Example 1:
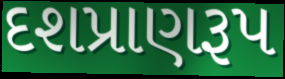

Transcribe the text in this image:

દશપ્રાણરૂપ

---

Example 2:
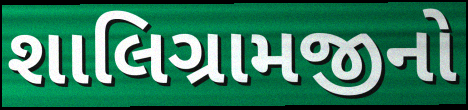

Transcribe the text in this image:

શાલિગ્રામજીનો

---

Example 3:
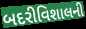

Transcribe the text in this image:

બદરીવિશાલની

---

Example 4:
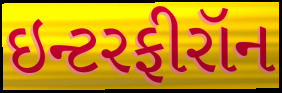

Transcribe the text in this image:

ઇન્ટરફીરૉન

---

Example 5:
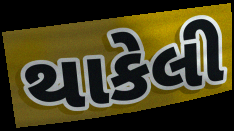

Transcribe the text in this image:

થાકેલી